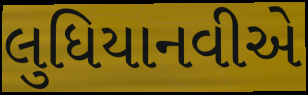
લુધિયાનવીએ